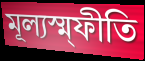
মূল্যস্ম্ফীতি